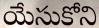
యేసుకోని